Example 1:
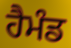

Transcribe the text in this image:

ਹੈਮੰਡ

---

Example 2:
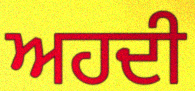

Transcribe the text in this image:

ਅਹਦੀ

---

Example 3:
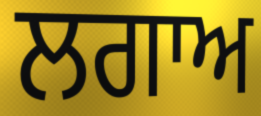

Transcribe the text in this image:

ਲਗਾਅ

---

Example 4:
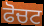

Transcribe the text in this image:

ਫੋਚਟ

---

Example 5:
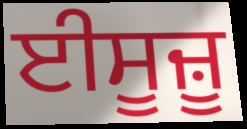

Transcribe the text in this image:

ਈਸੂਜ਼ੂ